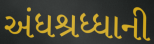
અંધશ્રધ્ધાની